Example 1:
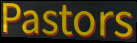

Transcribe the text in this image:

Pastors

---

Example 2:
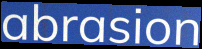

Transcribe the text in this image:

abrasion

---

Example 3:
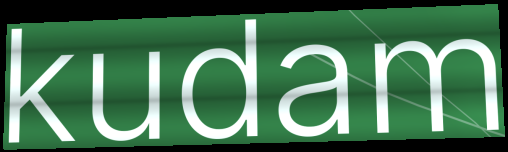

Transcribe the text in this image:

kudam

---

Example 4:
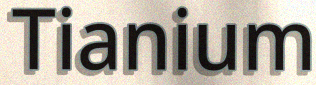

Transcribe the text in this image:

Tianium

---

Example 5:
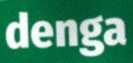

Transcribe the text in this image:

denga